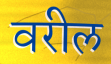
वरील